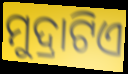
ମୁଦ୍ରାଟିଏ